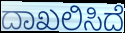
ದಾಖಲಿಸಿದೆ